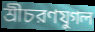
শ্রীচরণযুগল